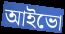
আইভো